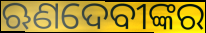
ଋଣଦେବୀଙ୍କର